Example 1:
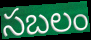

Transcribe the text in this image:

సబలం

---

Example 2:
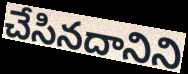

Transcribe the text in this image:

చేసినదానిని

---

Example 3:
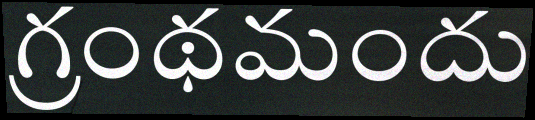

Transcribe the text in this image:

గ్రంథమందు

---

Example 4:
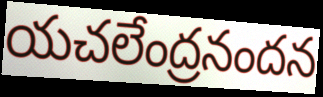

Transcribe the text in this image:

యచలేంద్రనందన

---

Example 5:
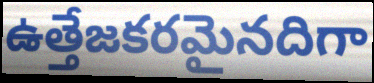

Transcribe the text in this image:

ఉత్తేజకరమైనదిగా